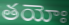
తయోః